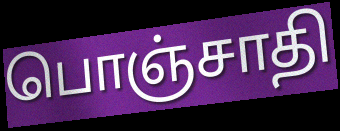
பொஞ்சாதி